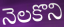
నెలకొని